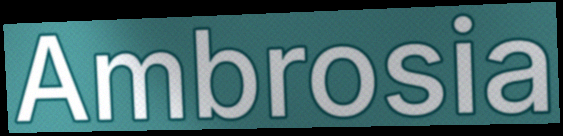
Ambrosia